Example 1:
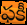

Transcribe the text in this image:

ఫకీ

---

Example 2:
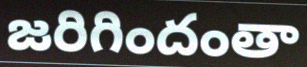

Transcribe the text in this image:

జరిగిందంతా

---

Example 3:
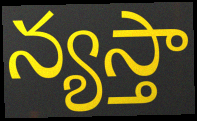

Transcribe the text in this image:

న్యస్తా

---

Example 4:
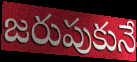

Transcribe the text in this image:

జరుపుకునే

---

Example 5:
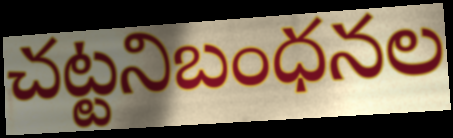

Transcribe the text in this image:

చట్టనిబంధనల